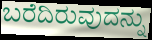
ಬರೆದಿರುವುದನ್ನು